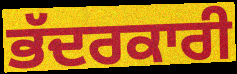
ਭੱਦਰਕਾਰੀ